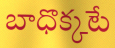
బాధొక్కటే